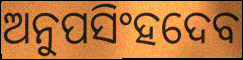
ଅନୁପସିଂହଦେବ